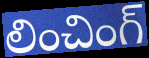
లించింగ్